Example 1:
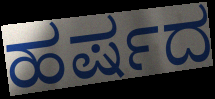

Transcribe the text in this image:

ಹರ್ಷದ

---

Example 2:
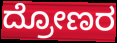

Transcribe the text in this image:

ದ್ರೋಣರ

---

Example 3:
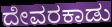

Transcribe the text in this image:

ದೇವರಕಾಡು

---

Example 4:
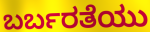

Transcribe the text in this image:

ಬರ್ಬರತೆಯು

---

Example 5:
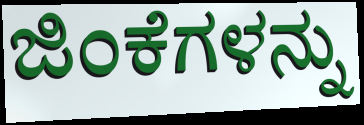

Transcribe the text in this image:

ಜಿಂಕೆಗಳನ್ನು